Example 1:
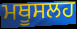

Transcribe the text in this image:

ਮਥੂਸਲਹ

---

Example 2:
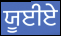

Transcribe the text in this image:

ਯੂਈਏ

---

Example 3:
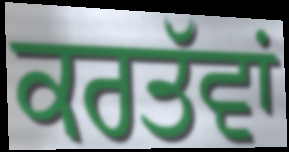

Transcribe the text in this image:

ਕਰਤੱਵਾਂ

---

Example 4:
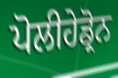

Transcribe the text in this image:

ਪੋਲੀਹੇਡ੍ਰੋਨ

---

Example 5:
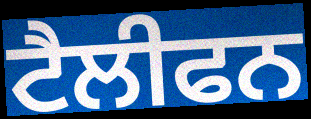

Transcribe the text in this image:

ਟੈਲੀਫਨ